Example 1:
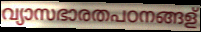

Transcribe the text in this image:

വ്യാസഭാരതപഠനങ്ങള്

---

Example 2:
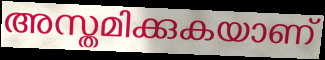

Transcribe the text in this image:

അസ്തമിക്കുകയാണ്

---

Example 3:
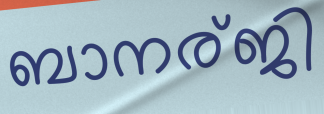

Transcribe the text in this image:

ബാനര്ജി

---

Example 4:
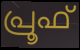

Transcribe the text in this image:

പ്രൂഫ്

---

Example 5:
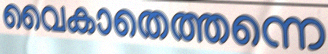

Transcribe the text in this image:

വൈകാതെത്തന്നെ